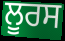
ਲੂਰਸ